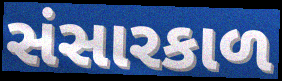
સંસારકાળ